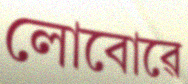
লোবোৱে